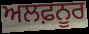
ਅਲਫ਼ਨੂਰ